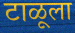
टाळूला